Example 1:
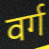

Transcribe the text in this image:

वर्ग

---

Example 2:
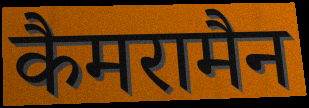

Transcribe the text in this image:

कैमरामैन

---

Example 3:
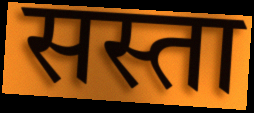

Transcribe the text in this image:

सस्ता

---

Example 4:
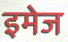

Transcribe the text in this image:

इमेज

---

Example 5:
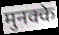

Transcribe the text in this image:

मुनक्के